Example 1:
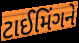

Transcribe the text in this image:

ટાઈમિંગને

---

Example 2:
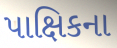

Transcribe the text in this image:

પાક્ષિકના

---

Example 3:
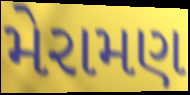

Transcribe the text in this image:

મેરામણ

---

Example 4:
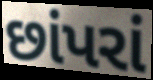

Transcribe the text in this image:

છાંપરાં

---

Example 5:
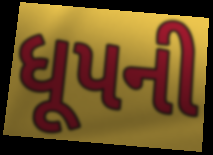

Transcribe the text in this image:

ધૂપની